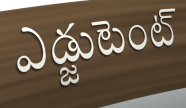
ఎడ్జుటెంట్